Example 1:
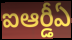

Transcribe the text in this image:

ఐఆర్డీఏ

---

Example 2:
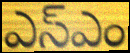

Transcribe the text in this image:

ఎస్ఎం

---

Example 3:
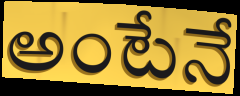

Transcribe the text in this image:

అంటేనే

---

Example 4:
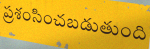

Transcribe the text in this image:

ప్రశంసించబడుతుంది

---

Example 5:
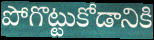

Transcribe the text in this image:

పోగొట్టుకోడానికి